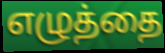
எழுத்தை